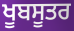
ਖੂਬਸੂਤਰ